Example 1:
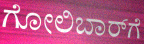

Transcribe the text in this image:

ಗೋಲಿಬಾರ್‌ಗೆ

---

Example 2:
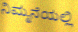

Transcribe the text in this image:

ನಿಮ್ಮನೆಯಲ್ಲಿ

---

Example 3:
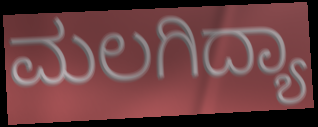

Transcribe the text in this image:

ಮಲಗಿದ್ಯಾ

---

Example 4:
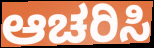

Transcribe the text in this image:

ಆಚರಿಸಿ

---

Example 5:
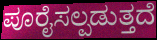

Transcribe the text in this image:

ಪೂರೈಸಲ್ಪಡುತ್ತದೆ